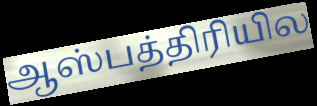
ஆஸ்பத்திரியில